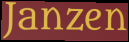
Janzen